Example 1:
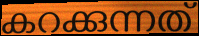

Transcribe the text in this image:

കറക്കുന്നത്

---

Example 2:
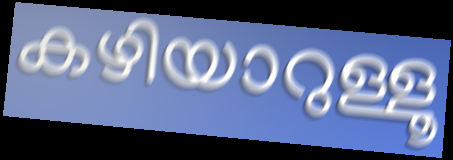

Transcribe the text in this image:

കഴിയാറുള്ളൂ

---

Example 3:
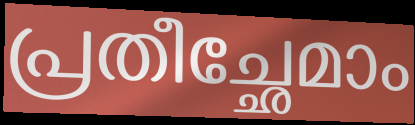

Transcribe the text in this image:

പ്രതീച്ഛേമാം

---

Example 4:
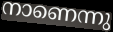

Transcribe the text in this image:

നാണെന്നു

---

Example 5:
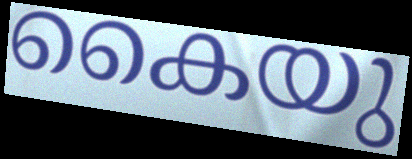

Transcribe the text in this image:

കൈയു